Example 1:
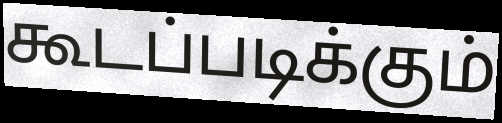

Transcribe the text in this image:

கூடப்படிக்கும்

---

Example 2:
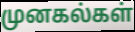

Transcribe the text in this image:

முனகல்கள்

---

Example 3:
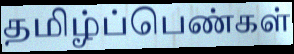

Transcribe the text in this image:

தமிழ்ப்பெண்கள்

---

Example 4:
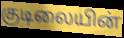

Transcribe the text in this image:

குடிலையின்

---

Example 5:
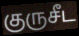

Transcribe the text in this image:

குருசீட